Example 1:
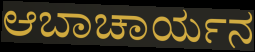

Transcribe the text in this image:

ಆಬಾಚಾರ್ಯನ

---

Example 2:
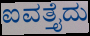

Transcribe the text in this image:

ಐವತ್ತೈದು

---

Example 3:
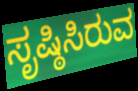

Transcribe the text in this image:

ಸೃಷ್ಠಿಸಿರುವ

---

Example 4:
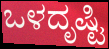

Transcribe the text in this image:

ಒಳದೃಷ್ಟಿ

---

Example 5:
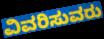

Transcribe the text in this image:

ವಿವರಿಸುವರು